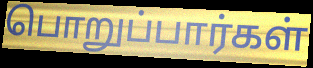
பொறுப்பார்கள்